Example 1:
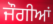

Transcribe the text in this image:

ਜੌਗੀਆਂ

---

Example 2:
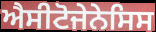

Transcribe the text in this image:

ਐਸੀਟੋਜੇਨੇਸਿਸ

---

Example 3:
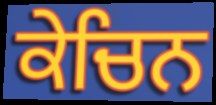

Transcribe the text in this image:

ਕੇਚਿਨ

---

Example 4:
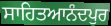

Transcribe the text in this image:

ਸਾਹਿਤਆਨੰਦਪੁਰ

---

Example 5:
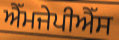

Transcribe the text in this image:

ਐੱਮਜੇਪੀਐੱਸ